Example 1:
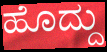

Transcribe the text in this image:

ಹೊದ್ದು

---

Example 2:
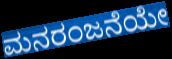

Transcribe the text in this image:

ಮನರಂಜನೆಯೇ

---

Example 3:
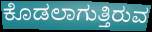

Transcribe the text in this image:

ಕೊಡಲಾಗುತ್ತಿರುವ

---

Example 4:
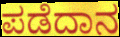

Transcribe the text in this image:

ಪಡೆದಾನ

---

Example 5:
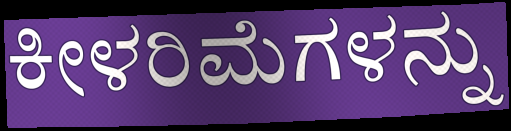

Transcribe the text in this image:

ಕೀಳರಿಮೆಗಳನ್ನು